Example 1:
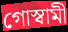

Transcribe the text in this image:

গোস্বামী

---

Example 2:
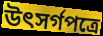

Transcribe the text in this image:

উৎসর্গপত্রে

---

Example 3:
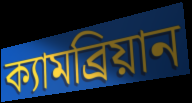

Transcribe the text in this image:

ক্যামব্রিয়ান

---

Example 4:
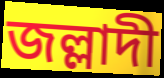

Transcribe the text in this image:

জল্লাদী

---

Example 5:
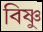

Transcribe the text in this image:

বিষ্ণু